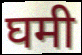
घमी